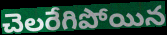
చెలరేగిపోయిన